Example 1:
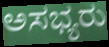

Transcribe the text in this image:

ಅಸಭ್ಯರು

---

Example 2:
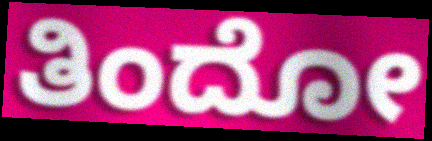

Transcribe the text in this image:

ತಿಂದೋ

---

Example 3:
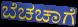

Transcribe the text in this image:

ಬೆಚಚಾಗೆ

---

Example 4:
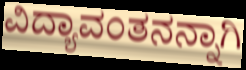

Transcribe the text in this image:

ವಿದ್ಯಾವಂತನನ್ನಾಗಿ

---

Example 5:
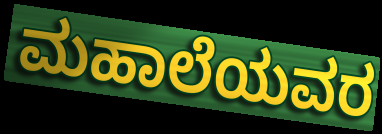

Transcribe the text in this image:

ಮಹಾಲೆಯವರ